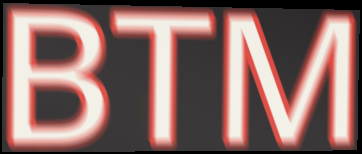
BTM